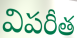
విపరీత